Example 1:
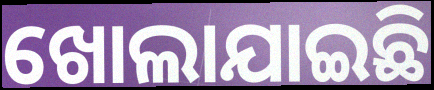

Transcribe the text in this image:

ଖୋଲାଯାଇଛି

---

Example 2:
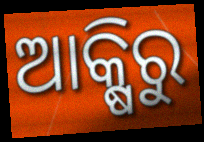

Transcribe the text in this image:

ଆକ୍ଷିରୁ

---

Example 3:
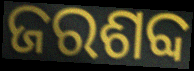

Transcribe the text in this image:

ଜରଶବ୍ଦ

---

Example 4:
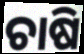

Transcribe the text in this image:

ଚାଷି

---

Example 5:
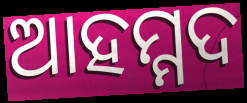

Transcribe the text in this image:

ଆହମ୍ମଦ